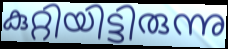
കുറ്റിയിട്ടിരുന്നു